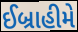
ઈબ્રાહીમે